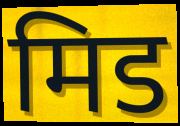
मिड